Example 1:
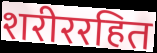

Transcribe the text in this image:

शरीररहित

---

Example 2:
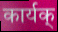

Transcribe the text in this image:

कार्यक्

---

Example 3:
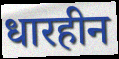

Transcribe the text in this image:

धारहीन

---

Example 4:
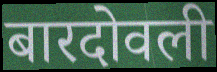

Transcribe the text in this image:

बारदोवली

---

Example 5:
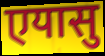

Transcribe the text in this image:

एयासु